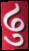
ઢુ